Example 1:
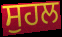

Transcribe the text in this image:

ਸੁਹਲ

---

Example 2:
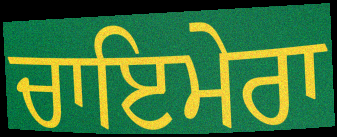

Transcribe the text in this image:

ਚਾਇਮੇਰਾ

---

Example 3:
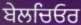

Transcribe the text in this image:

ਬੇਲਚਿਓਰ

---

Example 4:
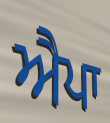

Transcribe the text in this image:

ਐਪਾ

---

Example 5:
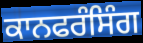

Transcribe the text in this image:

ਕਾਨਫਰੰਸਿੰਗ